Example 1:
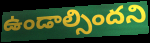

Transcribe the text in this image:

ఉండాల్సిందని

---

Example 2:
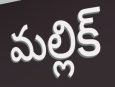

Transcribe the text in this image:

మల్లిక్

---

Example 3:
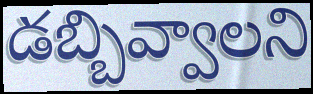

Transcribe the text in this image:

డబ్బివ్వాలని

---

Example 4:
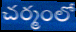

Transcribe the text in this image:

చర్మంలో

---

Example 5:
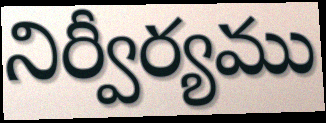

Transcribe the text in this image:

నిర్వీర్యము